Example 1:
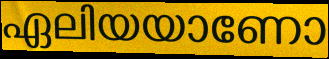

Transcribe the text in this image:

ഏലിയയാണോ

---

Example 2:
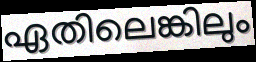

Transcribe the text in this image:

ഏതിലെങ്കിലും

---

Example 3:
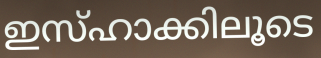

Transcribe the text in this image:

ഇസ്ഹാക്കിലൂടെ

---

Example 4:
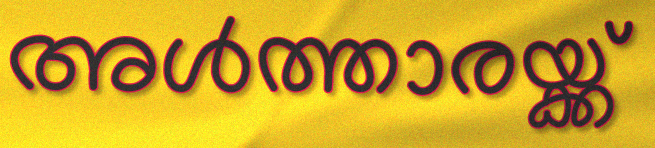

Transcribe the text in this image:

അൾത്താരയ്ക്ക്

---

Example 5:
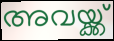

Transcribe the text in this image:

അവയ്ക്ക്